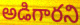
అడిగారని